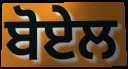
ਬੋਏਲ